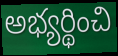
అభ్యర్థించి